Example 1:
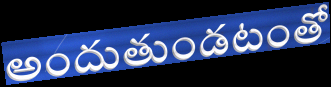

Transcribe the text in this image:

అందుతుండటంతో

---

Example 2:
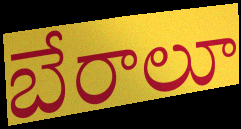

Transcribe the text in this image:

బేరాలూ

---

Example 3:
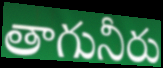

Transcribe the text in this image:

తాగునీరు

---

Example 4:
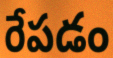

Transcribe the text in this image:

రేపడం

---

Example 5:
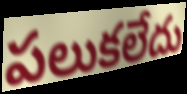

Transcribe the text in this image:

పలుకలేదు